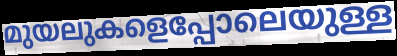
മുയലുകളെപ്പോലെയുള്ള